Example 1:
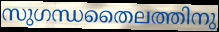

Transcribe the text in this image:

സുഗന്ധതൈലത്തിനു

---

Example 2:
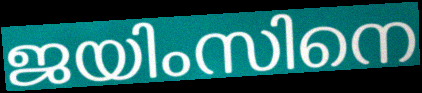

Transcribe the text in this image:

ജയിംസിനെ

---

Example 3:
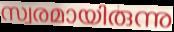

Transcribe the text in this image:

സ്വരമായിരുന്നു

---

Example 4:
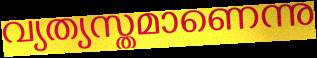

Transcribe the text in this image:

വ്യത്യസ്തമാണെന്നു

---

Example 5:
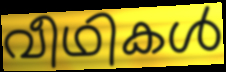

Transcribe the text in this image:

വീഥികൾ